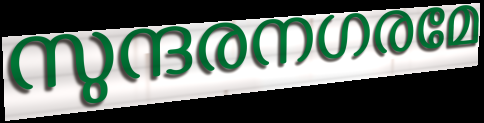
സുന്ദരനഗരമേ